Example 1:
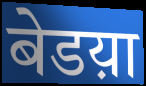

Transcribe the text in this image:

बेडय़ा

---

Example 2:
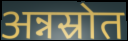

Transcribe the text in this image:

अन्नस्रोत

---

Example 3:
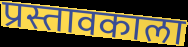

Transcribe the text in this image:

प्रस्तावकाला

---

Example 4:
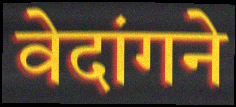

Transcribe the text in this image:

वेदांगने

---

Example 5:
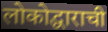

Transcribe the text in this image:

लोकोद्धाराची